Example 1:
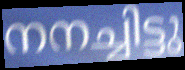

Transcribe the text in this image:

നനച്ചിട്ടു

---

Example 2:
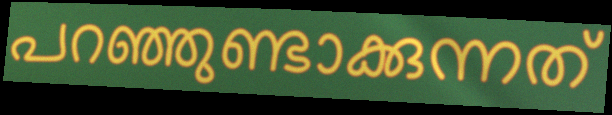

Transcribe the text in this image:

പറഞ്ഞുണ്ടാക്കുന്നത്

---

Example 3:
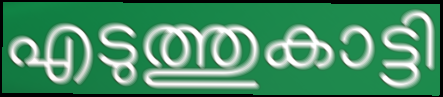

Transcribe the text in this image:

എടുത്തുകാട്ടി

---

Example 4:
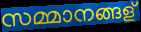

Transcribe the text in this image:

സമ്മാനങ്ങള്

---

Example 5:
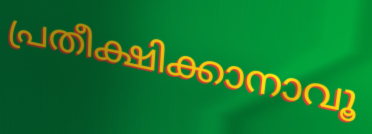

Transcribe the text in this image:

പ്രതീക്ഷിക്കാനാവൂ